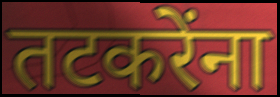
तटकरेंना